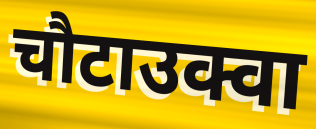
चौटाउक्वा